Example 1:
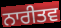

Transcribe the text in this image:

ਨਾਰੀਤਵ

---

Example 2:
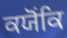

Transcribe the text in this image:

ਕਯੋਂਕਿ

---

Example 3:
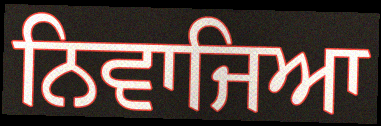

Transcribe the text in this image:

ਨਿਵਾਜਿਆ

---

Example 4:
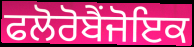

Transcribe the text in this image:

ਫਲੋਰੋਬੈਂਜੋਇਕ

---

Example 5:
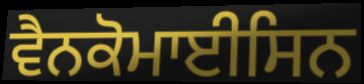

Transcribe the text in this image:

ਵੈਨਕੋਮਾਈਸਿਨ